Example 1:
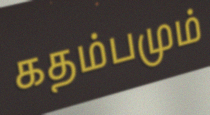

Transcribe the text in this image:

கதம்பமும்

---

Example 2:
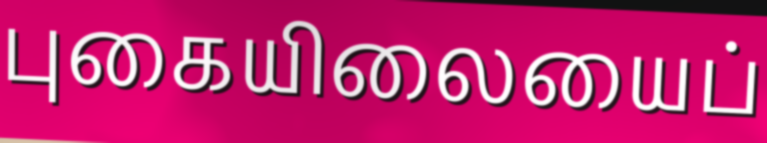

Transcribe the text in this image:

புகையிலையைப்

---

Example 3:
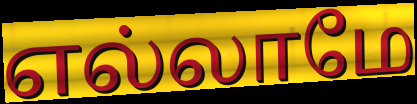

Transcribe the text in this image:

எல்லாமே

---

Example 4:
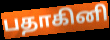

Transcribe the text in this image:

பதாகினி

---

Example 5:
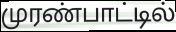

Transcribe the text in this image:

முரண்பாட்டில்